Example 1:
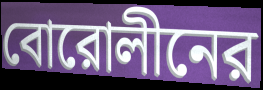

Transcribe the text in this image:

বোরোলীনের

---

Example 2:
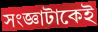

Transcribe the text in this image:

সংজ্ঞাটাকেই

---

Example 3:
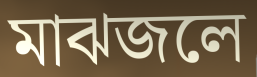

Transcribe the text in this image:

মাঝজলে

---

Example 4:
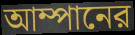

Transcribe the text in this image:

আম্পানের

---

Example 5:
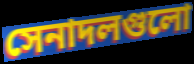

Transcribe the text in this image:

সেনাদলগুলো